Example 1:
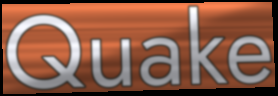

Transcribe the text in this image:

Quake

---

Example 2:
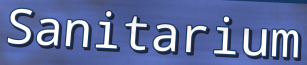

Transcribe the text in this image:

Sanitarium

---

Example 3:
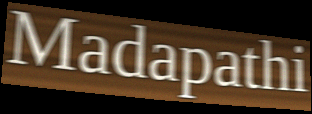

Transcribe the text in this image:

Madapathi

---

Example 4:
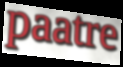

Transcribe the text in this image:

paatre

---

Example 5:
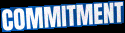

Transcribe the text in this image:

COMMITMENT